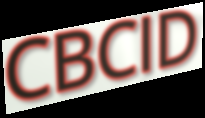
CBCID